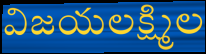
విజయలక్ష్మిల